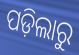
ପଡ଼ିଲାରୁ